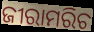
ଜୀରାମରିଚ